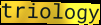
triology